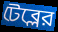
টেব্লের